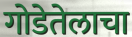
गोडेतेलाचा